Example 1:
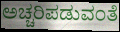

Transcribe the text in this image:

ಅಚ್ಚರಿಪಡುವಂತೆ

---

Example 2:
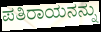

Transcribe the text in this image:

ಪತಿರಾಯನನ್ನು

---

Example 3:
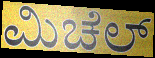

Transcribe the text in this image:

ಮಿಚೆಲ್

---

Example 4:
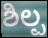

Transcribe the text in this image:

ಶಿಲ್ಪ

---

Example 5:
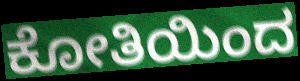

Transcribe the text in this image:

ಕೋತಿಯಿಂದ